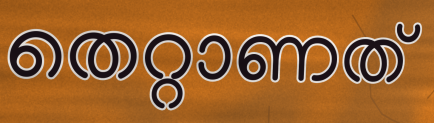
തെറ്റാണത്